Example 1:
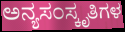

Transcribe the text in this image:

ಅನ್ಯಸಂಸ್ಕೃತಿಗಳ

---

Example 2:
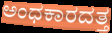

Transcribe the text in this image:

ಅಂಧಕಾರದತ್ತ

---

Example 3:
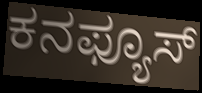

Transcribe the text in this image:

ಕನಫ್ಯೂಸ್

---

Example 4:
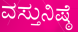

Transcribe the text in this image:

ವಸ್ತುನಿಷ್ಠೆ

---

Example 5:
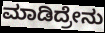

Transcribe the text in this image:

ಮಾಡಿದ್ರೇನು